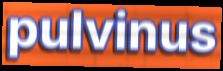
pulvinus